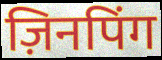
ज़िनपिंग